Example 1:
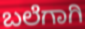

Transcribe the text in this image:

ಬಲೆಗಾಗಿ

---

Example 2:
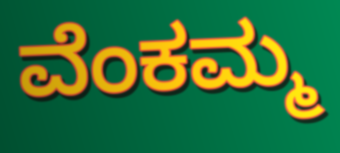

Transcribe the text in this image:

ವೆಂಕಮ್ಮ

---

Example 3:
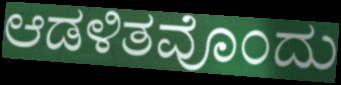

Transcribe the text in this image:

ಆಡಳಿತವೊಂದು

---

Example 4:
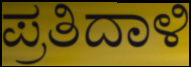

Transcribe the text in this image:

ಪ್ರತಿದಾಳಿ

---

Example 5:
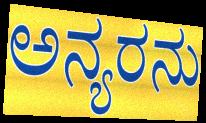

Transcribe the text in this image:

ಅನ್ಯರನು